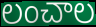
లంచాల